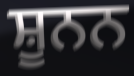
ਸ਼ੂਨਨ